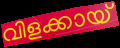
വിളക്കായ്